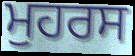
ਮੁਹਰਸ